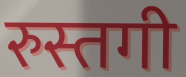
रुस्तगी